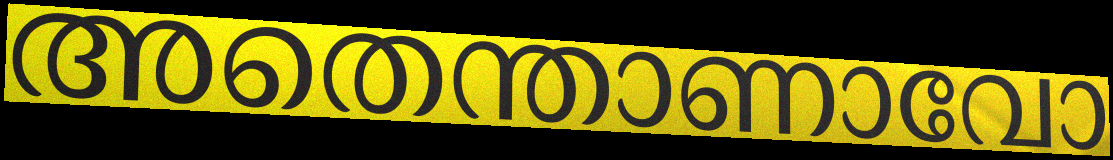
അതെന്താണാവോ